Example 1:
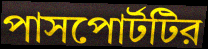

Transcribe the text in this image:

পাসপোর্টটির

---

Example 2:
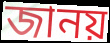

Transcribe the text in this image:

জানয়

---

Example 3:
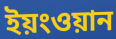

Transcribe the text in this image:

ইয়ংওয়ান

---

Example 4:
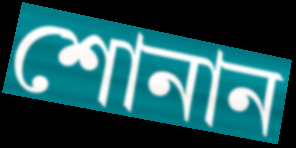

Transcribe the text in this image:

শোনান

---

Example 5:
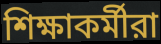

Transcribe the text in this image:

শিক্ষাকর্মীরা